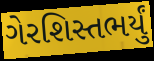
ગેરશિસ્તભર્યું